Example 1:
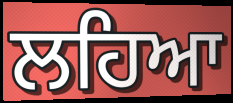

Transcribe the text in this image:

ਲਹਿਆ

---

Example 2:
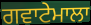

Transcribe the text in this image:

ਗਵਾਟੇਮਾਲਾ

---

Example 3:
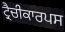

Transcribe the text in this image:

ਟ੍ਰੈਚੀਕਾਰਪਸ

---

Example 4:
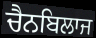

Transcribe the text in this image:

ਚੈਨਬਿਲਾਜ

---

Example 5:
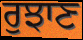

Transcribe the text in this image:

ਰੁਝਾਣ